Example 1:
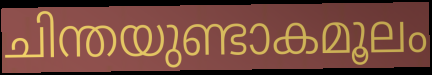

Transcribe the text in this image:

ചിന്തയുണ്ടാകമൂലം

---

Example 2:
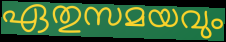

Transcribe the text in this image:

ഏതുസമയവും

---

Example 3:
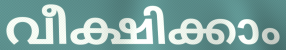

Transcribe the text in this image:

വീക്ഷിക്കാം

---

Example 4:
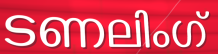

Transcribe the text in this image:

ടണലിംഗ്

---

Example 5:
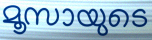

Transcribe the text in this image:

മൂസായുടെ